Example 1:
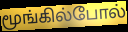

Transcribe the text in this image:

மூங்கில்போல்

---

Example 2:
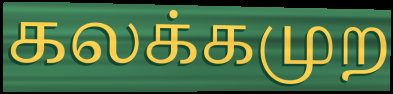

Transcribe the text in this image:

கலக்கமுற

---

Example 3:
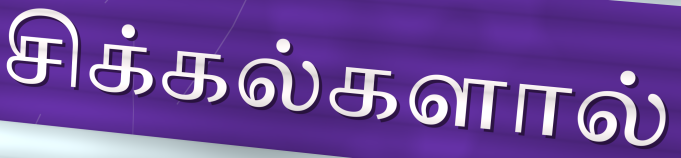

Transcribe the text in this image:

சிக்கல்களால்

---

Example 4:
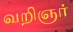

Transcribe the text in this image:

வறிஞர்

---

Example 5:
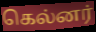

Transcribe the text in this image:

கெல்னர்